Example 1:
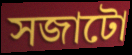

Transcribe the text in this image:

সজাটো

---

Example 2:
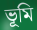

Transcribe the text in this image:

ভূমি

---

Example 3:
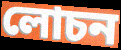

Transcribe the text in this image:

লোচন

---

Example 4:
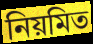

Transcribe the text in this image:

নিয়মিত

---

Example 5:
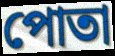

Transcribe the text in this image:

পোতা